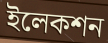
ইলেকশন